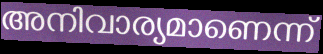
അനിവാര്യമാണെന്ന്